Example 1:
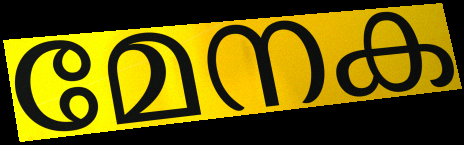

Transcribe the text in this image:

മേനക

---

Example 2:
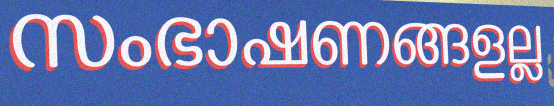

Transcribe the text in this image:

സംഭാഷണങ്ങളല്ല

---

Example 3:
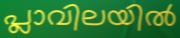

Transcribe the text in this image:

പ്ലാവിലയിൽ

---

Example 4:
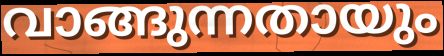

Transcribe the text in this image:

വാങ്ങുന്നതായും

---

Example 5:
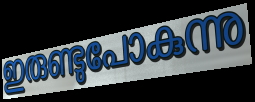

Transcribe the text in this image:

ഇരുണ്ടുപോകുന്നു